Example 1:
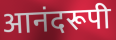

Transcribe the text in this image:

आनंदरूपी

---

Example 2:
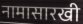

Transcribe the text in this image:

नामासारखी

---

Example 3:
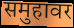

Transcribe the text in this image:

समुहावर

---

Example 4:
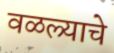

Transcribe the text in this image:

वळल्याचे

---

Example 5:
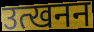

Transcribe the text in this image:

उत्‍खनन